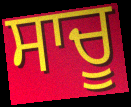
ਸਾਚੂ